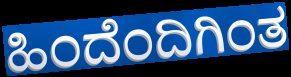
ಹಿಂದೆಂದಿಗಿಂತ